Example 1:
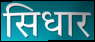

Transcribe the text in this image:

सिधार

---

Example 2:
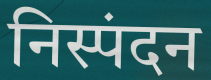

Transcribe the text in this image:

निस्पंदन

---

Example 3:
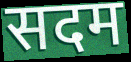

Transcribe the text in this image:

सदम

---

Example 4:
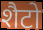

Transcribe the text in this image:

शैटो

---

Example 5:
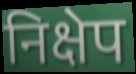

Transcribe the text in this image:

निक्षेप